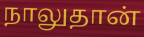
நாலுதான்